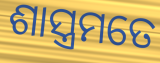
ଶାସ୍ତ୍ରମତେ